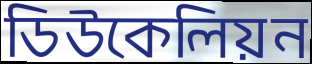
ডিউকেলিয়ন